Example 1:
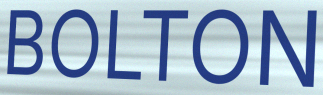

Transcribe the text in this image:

BOLTON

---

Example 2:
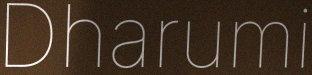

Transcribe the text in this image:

Dharumi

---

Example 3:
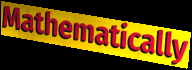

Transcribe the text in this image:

Mathematically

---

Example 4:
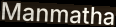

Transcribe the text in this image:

Manmatha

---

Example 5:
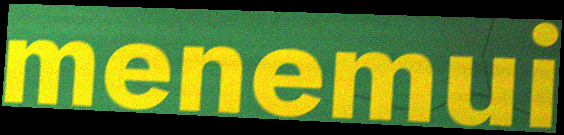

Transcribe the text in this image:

menemui